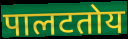
पालटतोय